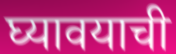
घ्यावयाची